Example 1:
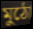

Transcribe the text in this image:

মুঠো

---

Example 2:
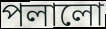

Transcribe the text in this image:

পলালো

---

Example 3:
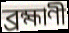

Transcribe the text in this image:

ব্রহ্মাণী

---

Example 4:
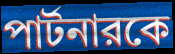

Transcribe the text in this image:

পার্টনারকে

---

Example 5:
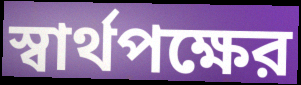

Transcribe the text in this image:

স্বার্থপক্ষের